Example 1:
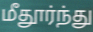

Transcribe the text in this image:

மீதூர்ந்து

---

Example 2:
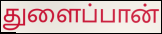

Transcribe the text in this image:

துளைப்பான்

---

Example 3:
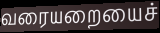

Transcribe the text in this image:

வரையறையைச்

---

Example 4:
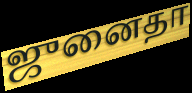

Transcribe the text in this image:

ஜுனைதா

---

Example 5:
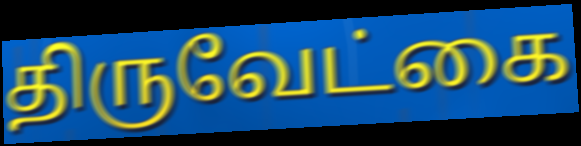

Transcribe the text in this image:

திருவேட்கை